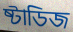
ষ্টাডিজ